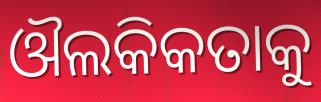
ଔଲକିକତାକୁ